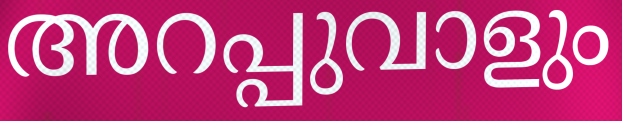
അറപ്പുവാളും